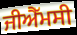
ਜੀਐੱਮਸੀ